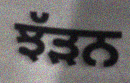
ਝੱੜਨ